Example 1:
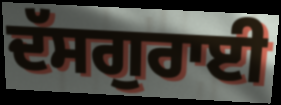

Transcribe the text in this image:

ਦੱਸਗੁਰਾਈ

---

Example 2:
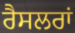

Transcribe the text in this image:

ਰੈਸਲਰਾਂ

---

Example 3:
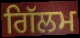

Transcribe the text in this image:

ਗਿੱਲਮ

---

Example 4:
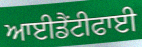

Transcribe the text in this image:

ਆਈਡੈਂਟੀਫਾਈ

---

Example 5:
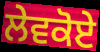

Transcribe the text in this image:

ਲੇਵਕੋਏ